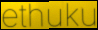
ethuku